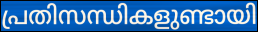
പ്രതിസന്ധികളുണ്ടായി